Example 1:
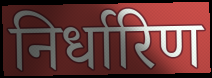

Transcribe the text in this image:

निर्धारिण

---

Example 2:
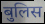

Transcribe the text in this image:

बुलिस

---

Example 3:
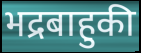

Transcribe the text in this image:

भद्रबाहुकी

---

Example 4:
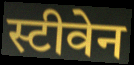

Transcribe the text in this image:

स्टीवेन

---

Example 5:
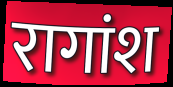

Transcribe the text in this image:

रागांश